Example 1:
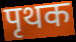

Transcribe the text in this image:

पृथक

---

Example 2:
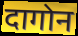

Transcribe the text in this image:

दागोन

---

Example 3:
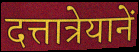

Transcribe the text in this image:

दत्तात्रेयानें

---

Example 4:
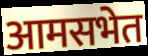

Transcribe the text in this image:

आमसभेत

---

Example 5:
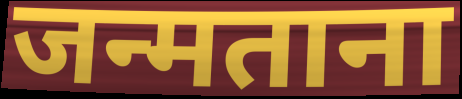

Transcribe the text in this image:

जन्मताना